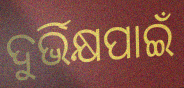
ଦୁର୍ଭିକ୍ଷପାଇଁ